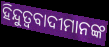
ହିନ୍ଦୁତ୍ଵବାଦୀମାନଙ୍କ